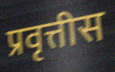
प्रवृत्तीस